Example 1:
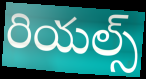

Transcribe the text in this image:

రియల్స్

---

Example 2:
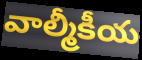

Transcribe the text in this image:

వాల్మీకీయ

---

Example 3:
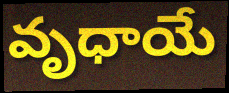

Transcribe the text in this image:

వృధాయే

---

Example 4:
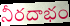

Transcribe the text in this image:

నీరదాభం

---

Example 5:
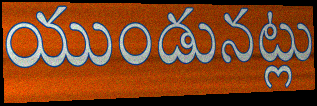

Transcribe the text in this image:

యుండునట్లు